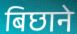
बिछाने